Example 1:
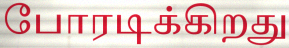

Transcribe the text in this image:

போரடிக்கிறது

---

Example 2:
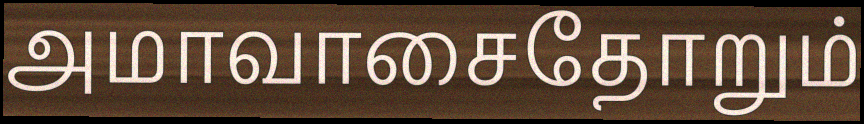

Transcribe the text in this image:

அமாவாசைதோறும்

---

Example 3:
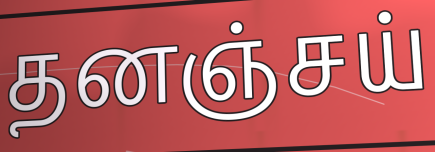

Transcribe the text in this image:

தனஞ்சய்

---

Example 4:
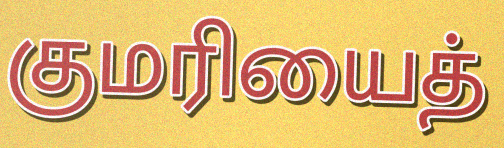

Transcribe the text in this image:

குமரியைத்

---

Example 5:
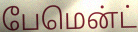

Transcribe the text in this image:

பேமென்ட்